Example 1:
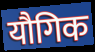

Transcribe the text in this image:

यौगिक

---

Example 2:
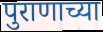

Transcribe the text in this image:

पुराणाच्या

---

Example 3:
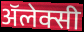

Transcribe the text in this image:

ॲलेक्सी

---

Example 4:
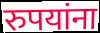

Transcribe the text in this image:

रुपयांना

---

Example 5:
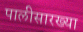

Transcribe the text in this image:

पालीसारख्या